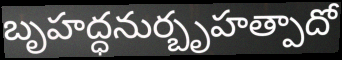
బృహద్ధనుర్బృహత్పాదో